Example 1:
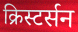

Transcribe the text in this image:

क्रिस्टर्सन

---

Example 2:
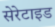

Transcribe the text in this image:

सेरेटाइड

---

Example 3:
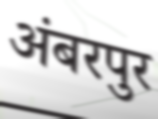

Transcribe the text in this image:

अंबरपुर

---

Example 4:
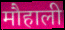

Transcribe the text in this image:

मौहाली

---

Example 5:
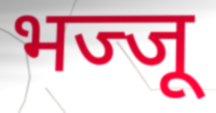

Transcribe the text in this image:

भज्जू